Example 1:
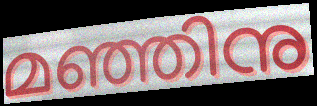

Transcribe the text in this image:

മഞ്ഞിനു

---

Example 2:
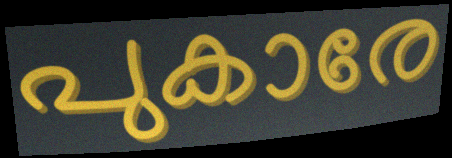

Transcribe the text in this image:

പുകാരേ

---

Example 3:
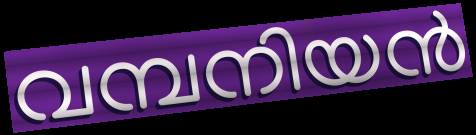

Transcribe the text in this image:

വമ്പനിയൻ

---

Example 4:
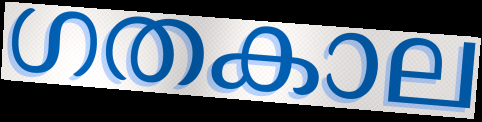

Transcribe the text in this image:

ഗതകാല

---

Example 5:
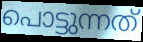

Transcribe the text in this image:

പൊട്ടുന്നത്